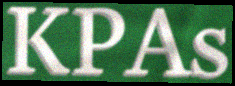
KPAs